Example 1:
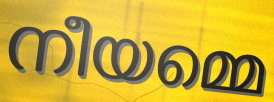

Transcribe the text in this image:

നീയമ്മെ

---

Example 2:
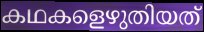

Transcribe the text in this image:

കഥകളെഴുതിയത്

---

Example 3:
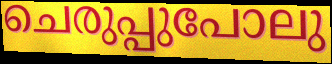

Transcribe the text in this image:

ചെരുപ്പുപോലു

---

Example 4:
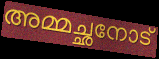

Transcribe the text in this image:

അമ്മച്ഛനോട്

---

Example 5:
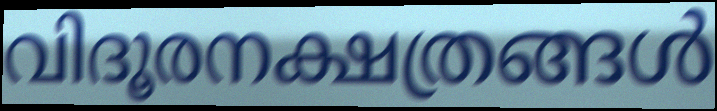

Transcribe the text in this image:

വിദൂരനക്ഷത്രങ്ങൾ